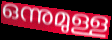
ഒന്നുമുള്ള